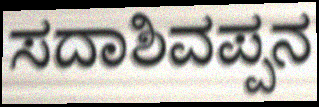
ಸದಾಶಿವಪ್ಪನ